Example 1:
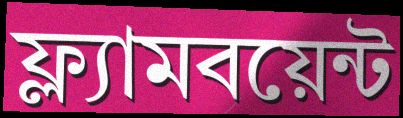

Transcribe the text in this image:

ফ্ল্যামবয়েন্ট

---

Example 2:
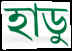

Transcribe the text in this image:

হাডু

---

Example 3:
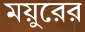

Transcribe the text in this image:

ময়ুরের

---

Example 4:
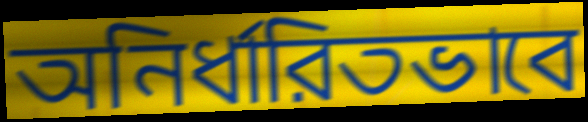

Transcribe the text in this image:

অনির্ধারিতভাবে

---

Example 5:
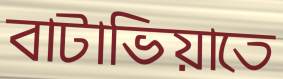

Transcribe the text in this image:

বাটাভিয়াতে